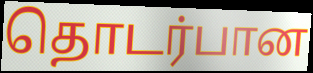
தொடர்பான